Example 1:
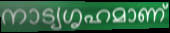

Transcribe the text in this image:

നാട്യഗൃഹമാണ്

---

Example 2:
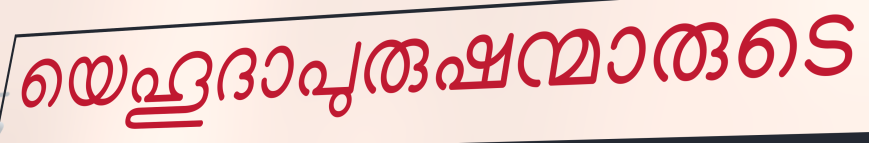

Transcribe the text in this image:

യെഹൂദാപുരുഷന്മാരുടെ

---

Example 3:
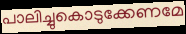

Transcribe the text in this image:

പാലിച്ചുകൊടുക്കേണമേ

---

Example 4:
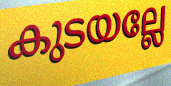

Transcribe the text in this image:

കുടയല്ലേ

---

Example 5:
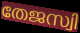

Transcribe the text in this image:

തേജസ്വി